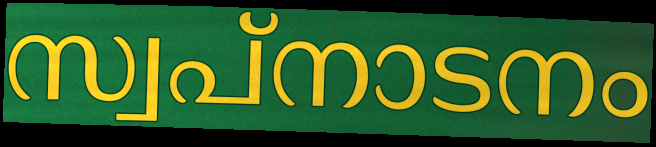
സ്വപ്നാടനം